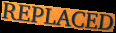
REPLACED